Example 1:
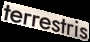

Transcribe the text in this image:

terrestris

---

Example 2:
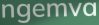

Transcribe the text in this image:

ngemva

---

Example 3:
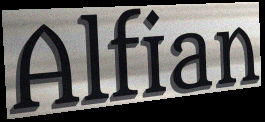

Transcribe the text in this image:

Alfian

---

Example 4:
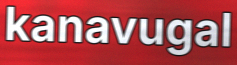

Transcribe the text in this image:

kanavugal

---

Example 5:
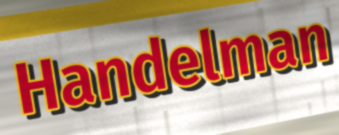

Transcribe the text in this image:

Handelman